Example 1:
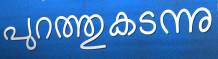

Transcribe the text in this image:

പുറത്തുകടന്നു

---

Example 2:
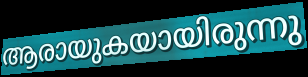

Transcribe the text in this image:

ആരായുകയായിരുന്നു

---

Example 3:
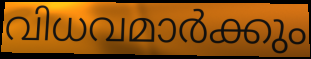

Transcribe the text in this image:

വിധവമാർക്കും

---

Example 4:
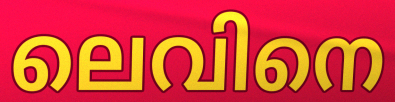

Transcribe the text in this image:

ലെവിനെ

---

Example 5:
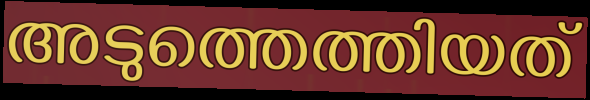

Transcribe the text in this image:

അടുത്തെത്തിയത്